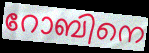
റോബിനെ